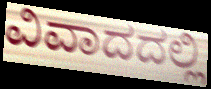
ವಿವಾದದಲ್ಲಿ